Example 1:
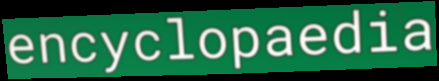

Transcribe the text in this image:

encyclopaedia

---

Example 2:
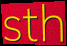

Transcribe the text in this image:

sth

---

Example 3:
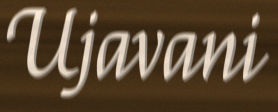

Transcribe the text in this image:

Ujavani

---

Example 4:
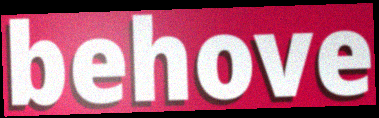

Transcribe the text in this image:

behove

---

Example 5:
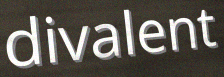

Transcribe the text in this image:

divalent